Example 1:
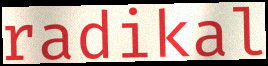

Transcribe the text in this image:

radikal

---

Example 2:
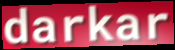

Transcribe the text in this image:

darkar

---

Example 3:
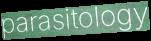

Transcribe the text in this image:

parasitology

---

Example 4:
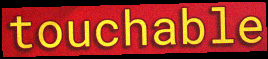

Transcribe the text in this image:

touchable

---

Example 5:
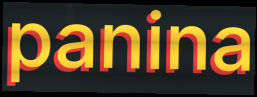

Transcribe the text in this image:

panina